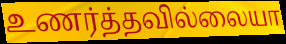
உணர்த்தவில்லையா